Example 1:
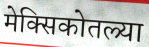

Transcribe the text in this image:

मेक्सिकोतल्या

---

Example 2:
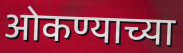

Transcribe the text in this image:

ओकण्याच्या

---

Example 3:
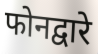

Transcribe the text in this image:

फोनद्वारे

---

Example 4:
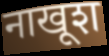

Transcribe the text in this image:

नाखूश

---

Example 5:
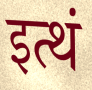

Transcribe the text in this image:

इत्थं